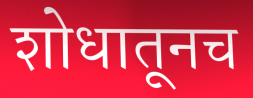
शोधातूनच